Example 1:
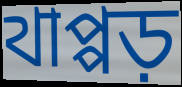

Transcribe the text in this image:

থাপ্পড়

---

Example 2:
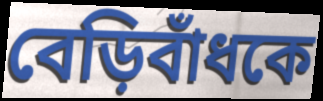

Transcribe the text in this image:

বেড়িবাঁধকে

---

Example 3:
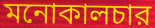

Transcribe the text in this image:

মনোকালচার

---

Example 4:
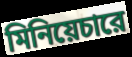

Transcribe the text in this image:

মিনিয়েচারে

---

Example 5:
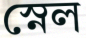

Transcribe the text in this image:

স্নেল